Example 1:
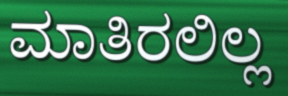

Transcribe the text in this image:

ಮಾತಿರಲಿಲ್ಲ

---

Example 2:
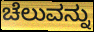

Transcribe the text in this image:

ಚೆಲುವನ್ನು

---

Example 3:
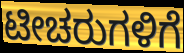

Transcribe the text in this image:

ಟೀಚರುಗಳಿಗೆ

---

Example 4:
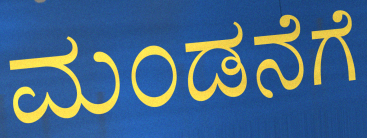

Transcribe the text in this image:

ಮಂಡನೆಗೆ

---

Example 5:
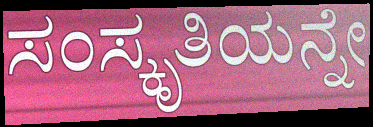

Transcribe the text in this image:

ಸಂಸ್ಕೃತಿಯನ್ನೇ